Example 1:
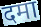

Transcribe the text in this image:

दमा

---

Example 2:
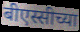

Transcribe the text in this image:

बीएस्सीच्या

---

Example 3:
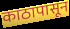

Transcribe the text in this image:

काठापासून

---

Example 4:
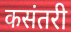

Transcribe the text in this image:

कसंतरी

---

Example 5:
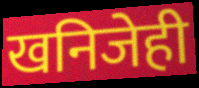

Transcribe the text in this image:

खनिजेही